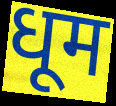
धूम